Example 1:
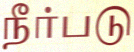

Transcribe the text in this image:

நீர்படு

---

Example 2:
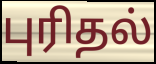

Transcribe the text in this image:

புரிதல்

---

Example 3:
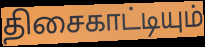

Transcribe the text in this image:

திசைகாட்டியும்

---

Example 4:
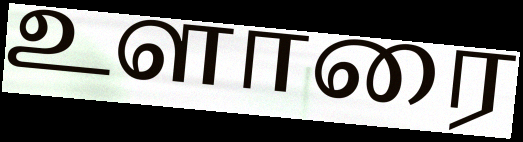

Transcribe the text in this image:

உளாரை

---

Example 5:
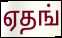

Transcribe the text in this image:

ஏதங்